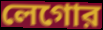
লেগোর